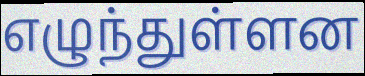
எழுந்துள்ளன